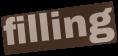
filling